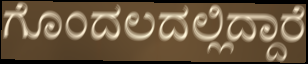
ಗೊಂದಲದಲ್ಲಿದ್ದಾರೆ